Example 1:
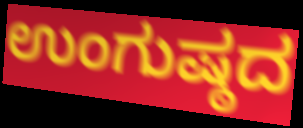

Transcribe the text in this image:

ಉಂಗುಷ್ಠದ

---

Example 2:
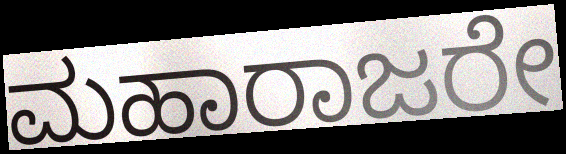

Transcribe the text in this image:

ಮಹಾರಾಜರೇ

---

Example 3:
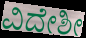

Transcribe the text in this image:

ವಿದೇಶೀ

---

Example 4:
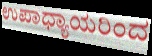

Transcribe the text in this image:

ಉಪಾಧ್ಯಾಯರಿಂದ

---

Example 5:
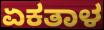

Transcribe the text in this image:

ಏಕತಾಳ